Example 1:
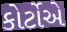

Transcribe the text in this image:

કોર્ટોએ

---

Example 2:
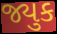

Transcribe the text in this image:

જ્યુક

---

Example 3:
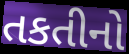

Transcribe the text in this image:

તકતીનો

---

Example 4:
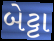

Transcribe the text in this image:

બેટ્ટા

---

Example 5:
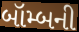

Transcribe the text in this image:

બૉમ્બની